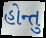
હોન્તુ